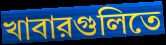
খাবারগুলিতে